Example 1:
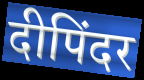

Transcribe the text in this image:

दीपिंदर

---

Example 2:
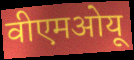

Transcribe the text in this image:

वीएमओयू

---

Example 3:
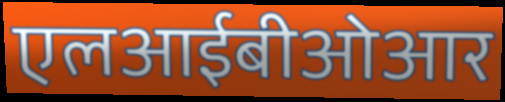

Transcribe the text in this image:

एलआईबीओआर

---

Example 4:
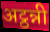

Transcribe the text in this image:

अट्ठन्नी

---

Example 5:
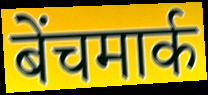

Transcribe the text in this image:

बेंचमार्क